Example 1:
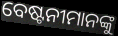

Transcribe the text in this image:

ବେଷ୍ଟନୀମାନଙ୍କୁ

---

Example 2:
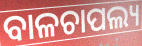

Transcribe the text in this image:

ବାଳଚାପଲ୍ୟ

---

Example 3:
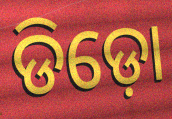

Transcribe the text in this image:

ଡିଡ଼ୋ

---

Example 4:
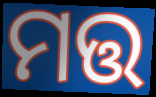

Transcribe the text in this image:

ମତ୍ତ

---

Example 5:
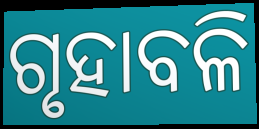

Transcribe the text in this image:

ଗୃହାବଳି